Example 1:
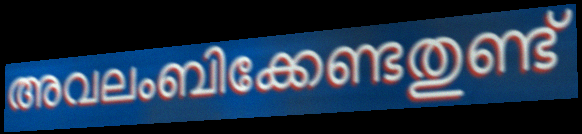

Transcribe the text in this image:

അവലംബിക്കേണ്ടതുണ്ട്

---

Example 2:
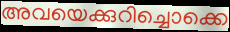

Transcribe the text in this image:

അവയെക്കുറിച്ചൊക്കെ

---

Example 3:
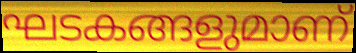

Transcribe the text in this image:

ഘടകങ്ങളുമാണ്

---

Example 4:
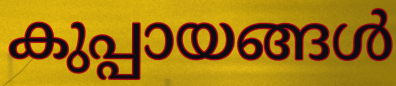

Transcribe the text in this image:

കുപ്പായങ്ങൾ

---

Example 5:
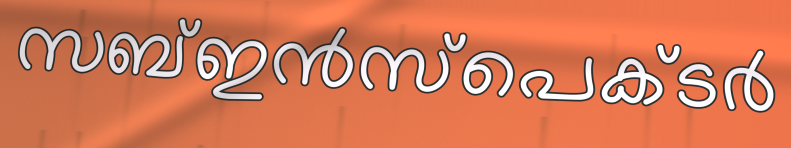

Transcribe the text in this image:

സബ്ഇൻസ്പെക്ടർ